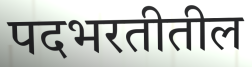
पदभरतीतील